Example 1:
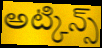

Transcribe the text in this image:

అట్కిన్స్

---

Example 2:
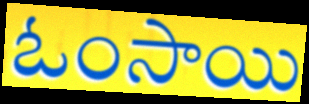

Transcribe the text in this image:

ఓంసాయి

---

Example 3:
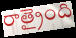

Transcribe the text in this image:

రాత్రైంది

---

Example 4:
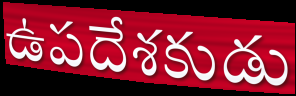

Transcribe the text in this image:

ఉపదేశకుడు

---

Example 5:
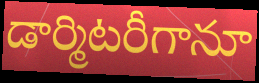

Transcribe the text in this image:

డార్మిటరీగానూ